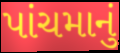
પાંચમાનું